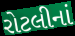
રોટલીનાં